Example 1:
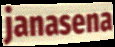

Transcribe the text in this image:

janasena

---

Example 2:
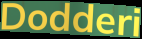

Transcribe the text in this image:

Dodderi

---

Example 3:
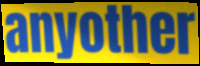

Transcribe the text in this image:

anyother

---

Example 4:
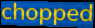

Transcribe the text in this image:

chopped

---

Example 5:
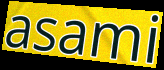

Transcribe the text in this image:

asami